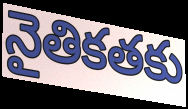
నైతికతకు